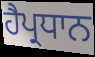
ਹੈਪ੍ਰਧਾਨ